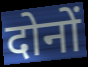
दोनों